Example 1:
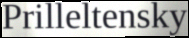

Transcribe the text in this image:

Prilleltensky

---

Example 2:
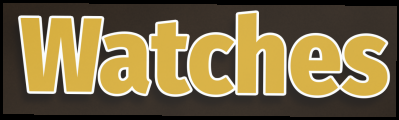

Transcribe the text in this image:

Watches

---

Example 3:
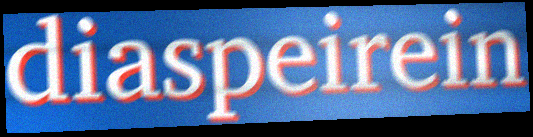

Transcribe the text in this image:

diaspeirein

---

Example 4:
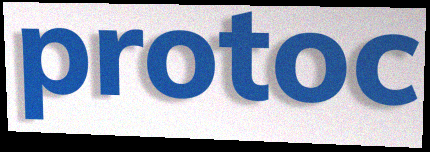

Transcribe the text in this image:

protoc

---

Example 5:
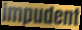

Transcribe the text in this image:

impudent